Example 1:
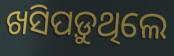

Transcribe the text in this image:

ଖସିପଡ଼ୁଥିଲେ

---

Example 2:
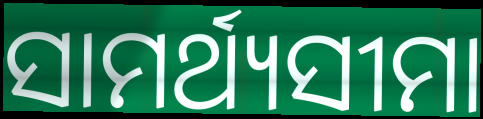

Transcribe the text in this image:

ସାମର୍ଥ୍ୟସୀମା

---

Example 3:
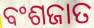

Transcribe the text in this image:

ବଂଶଜାତ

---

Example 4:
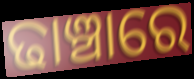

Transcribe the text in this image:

ଢାଞ୍ଚାରେ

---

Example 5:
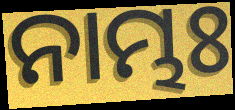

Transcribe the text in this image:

ନାମ୍ଭଃ